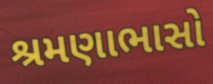
શ્રમણાભાસો